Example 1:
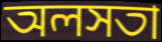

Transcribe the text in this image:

অলসতা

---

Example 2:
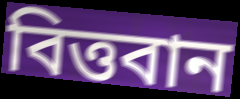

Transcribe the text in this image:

বিত্তবান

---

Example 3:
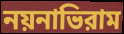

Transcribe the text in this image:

নয়নাভিরাম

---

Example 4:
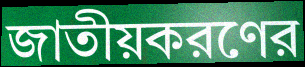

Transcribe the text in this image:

জাতীয়করণের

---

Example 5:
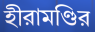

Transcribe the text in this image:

হীরামণ্ডির